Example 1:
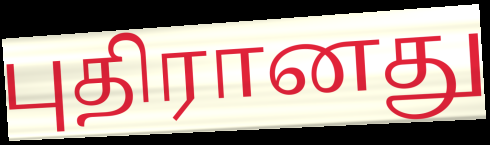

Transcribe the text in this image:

புதிரானது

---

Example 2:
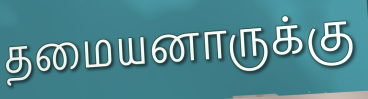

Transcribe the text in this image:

தமையனாருக்கு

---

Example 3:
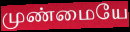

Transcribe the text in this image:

முண்மையே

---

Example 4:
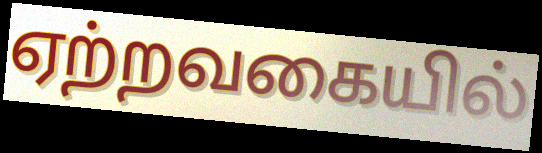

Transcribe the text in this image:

ஏற்றவகையில்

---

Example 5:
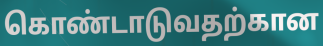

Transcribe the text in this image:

கொண்டாடுவதற்கான